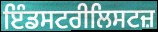
ਇੰਡਸਟਰੀਲਿਸਟਜ਼